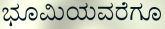
ಭೂಮಿಯವರೆಗೂ